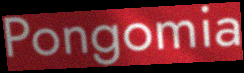
Pongomia